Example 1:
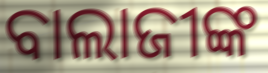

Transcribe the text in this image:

ବାଲାଜୀଙ୍କ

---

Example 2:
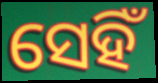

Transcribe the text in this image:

ସେହିଁ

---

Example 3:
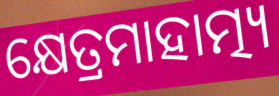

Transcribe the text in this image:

କ୍ଷେତ୍ରମାହାତ୍ମ୍ୟ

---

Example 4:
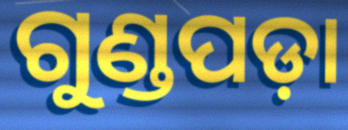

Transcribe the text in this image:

ଗୁଣ୍ଡପଡ଼ା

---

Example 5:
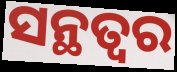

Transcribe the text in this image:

ସନ୍ଥତ୍ବର